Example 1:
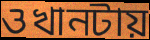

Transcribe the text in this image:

ওখানটায়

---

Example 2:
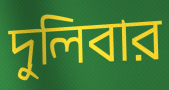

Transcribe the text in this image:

দুলিবার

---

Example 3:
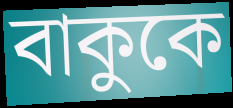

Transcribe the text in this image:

বাকুকে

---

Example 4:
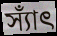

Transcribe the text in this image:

স্যাঁৎ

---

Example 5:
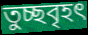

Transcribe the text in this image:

তুচ্ছবৃহৎ